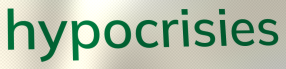
hypocrisies